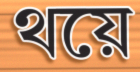
থয়ে